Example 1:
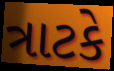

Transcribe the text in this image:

ત્રાટકે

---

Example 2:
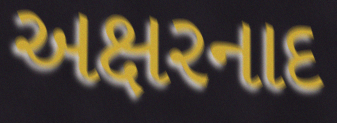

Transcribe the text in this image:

અક્ષરનાદ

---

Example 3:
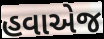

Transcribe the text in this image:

હવાએજ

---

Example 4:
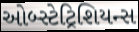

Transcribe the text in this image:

ઓબ્સ્ટેટ્રિશિયન્સ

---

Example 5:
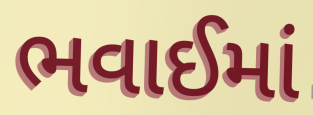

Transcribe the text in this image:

ભવાઈમાં